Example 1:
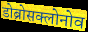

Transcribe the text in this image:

डोब्रोसक्लोनोव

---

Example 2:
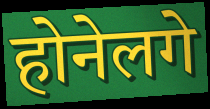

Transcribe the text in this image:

होनेलगे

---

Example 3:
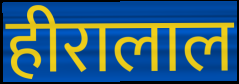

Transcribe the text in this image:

हीरालाल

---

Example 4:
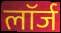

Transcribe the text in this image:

लॉर्ज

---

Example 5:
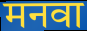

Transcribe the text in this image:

मनवा